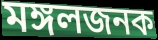
মঙ্গলজনক